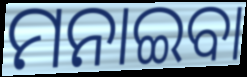
ମନାଇବା